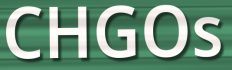
CHGOs